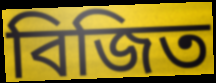
বিজিত